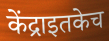
केंद्राइतकेच